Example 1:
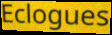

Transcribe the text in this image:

Eclogues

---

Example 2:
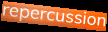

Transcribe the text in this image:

repercussion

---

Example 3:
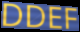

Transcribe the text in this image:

DDEF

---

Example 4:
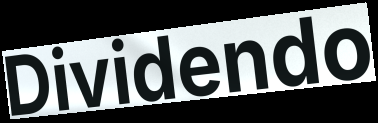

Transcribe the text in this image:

Dividendo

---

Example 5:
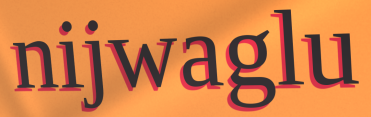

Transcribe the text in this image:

nijwaglu